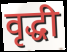
वृद्धी